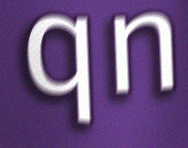
qn